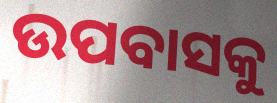
ଉପବାସକୁ